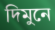
দিমুনে